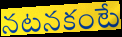
నటనకంటే